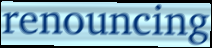
renouncing